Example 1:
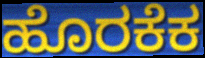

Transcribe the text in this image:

ಹೊರಕೆಕ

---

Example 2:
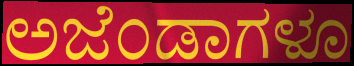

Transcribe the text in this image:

ಅಜೆಂಡಾಗಳೂ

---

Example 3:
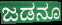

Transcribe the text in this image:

ಜಡನೂ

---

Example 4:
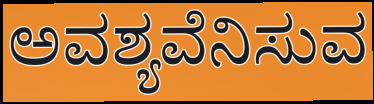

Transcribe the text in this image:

ಅವಶ್ಯವೆನಿಸುವ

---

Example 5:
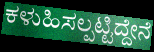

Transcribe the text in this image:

ಕಳುಹಿಸಲ್ಪಟ್ಟಿದ್ದೇನೆ